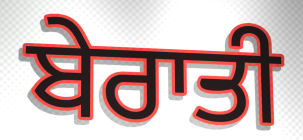
ਬੇਰਾਤੀ